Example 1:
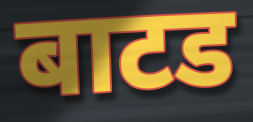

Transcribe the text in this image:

बाटड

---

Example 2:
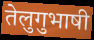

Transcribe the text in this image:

तेलुगुभाषी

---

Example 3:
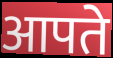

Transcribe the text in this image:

आपते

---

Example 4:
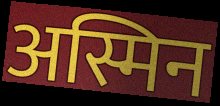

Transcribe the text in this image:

अस्मिन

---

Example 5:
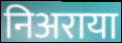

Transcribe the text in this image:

निअराया